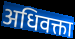
अधिवक्ता